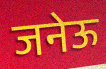
जनेऊ